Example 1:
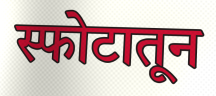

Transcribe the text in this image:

स्फोटातून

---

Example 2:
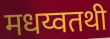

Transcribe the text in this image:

मधय्वतथी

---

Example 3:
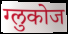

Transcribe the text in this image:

ग्लुकोज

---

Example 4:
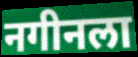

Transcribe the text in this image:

नगीनला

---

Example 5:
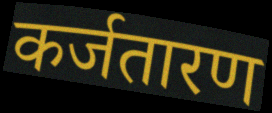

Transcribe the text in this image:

कर्जतारण